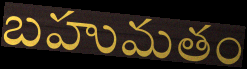
బహుమతం